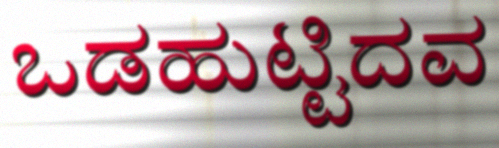
ಒಡಹುಟ್ಟಿದವ